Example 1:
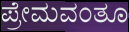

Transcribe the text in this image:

ಪ್ರೇಮವಂತೂ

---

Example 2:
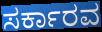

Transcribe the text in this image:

ಸರ್ಕಾರವ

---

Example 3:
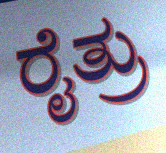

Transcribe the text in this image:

ರೈತ್ರು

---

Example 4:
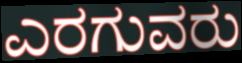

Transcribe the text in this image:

ಎರಗುವರು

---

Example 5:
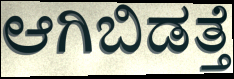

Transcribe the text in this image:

ಆಗಿಬಿಡತ್ತೆ